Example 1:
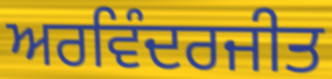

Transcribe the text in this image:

ਅਰਵਿੰਦਰਜੀਤ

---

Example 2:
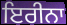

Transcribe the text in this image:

ਇਰੀਨਾ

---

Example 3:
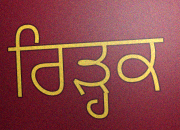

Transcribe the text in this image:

ਰਿੜ੍ਹਕ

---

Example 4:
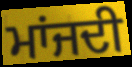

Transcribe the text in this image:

ਮਾਂਜਦੀ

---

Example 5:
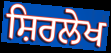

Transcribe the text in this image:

ਸ਼ਿਰਲੇਖ